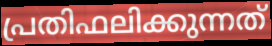
പ്രതിഫലിക്കുന്നത്